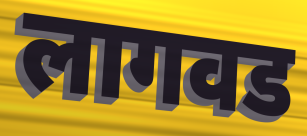
लागवड